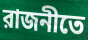
রাজনীতে